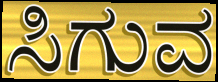
ಸಿಗುವ